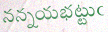
నన్నయభట్టుఁ